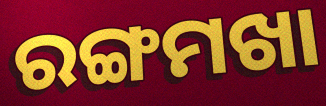
ରଙ୍ଗମଖା